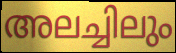
അലച്ചിലും